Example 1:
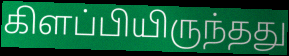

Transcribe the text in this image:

கிளப்பியிருந்தது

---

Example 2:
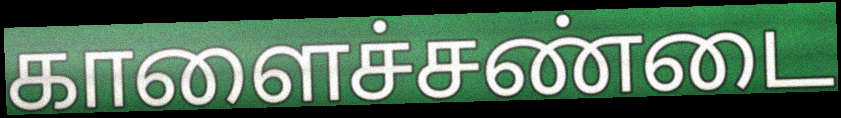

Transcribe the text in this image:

காளைச்சண்டை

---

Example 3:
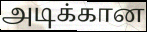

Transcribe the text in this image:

அடிக்கான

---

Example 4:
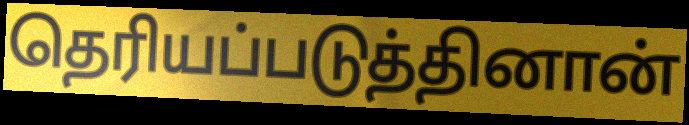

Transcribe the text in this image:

தெரியப்படுத்தினான்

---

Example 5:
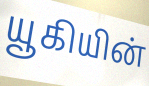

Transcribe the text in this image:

யூகியின்